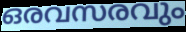
ഒരവസരവും